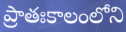
ప్రాతఃకాలంలోని